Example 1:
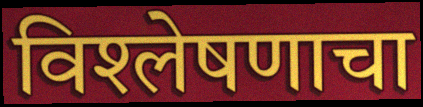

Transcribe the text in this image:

विश्‍लेषणाचा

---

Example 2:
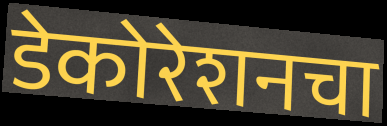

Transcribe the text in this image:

डेकोरेशनचा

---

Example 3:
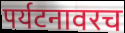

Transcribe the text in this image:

पर्यटनावरच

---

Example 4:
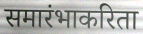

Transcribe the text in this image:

समारंभाकरिता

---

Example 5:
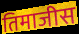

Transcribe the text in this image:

तिमाजीस